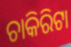
ଚାକିରିଟା